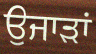
ਉਜਾੜਾਂ